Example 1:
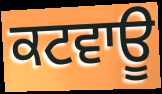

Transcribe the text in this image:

ਕਟਵਾਊ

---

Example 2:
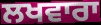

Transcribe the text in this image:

ਲਖਵਾਰਾ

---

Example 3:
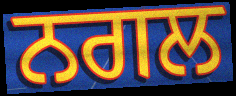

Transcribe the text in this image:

ਨਗਲ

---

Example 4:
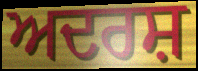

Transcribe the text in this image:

ਅਦਰਸ਼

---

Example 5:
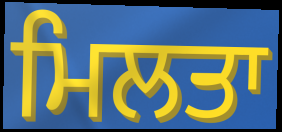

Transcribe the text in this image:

ਮਿਲਤਾ